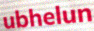
ubhelun